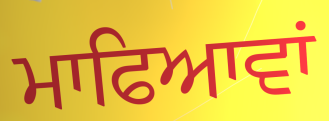
ਮਾਫਿਆਵਾਂ